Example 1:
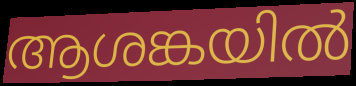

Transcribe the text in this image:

ആശങ്കയിൽ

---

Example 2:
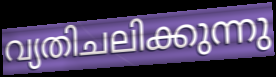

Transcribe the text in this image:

വ്യതിചലിക്കുന്നു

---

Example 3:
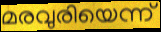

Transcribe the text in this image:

മരവുരിയെന്ന്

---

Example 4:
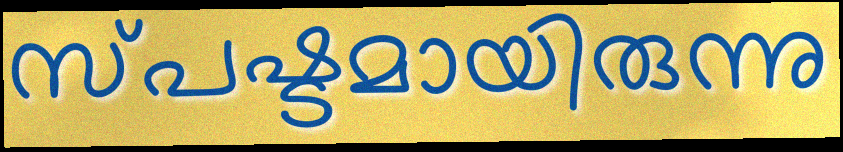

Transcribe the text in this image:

സ്പഷ്ടമായിരുന്നു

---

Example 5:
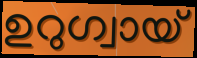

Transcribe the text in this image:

ഉറുഗ്വായ്